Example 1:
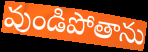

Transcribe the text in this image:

వుండిపోతాను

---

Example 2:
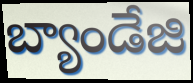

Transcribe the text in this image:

బ్యాండేజి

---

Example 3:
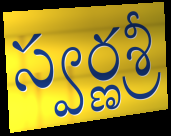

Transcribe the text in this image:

స్వర్ణశ్రీ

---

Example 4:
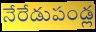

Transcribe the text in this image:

నేరేడుపండ్ల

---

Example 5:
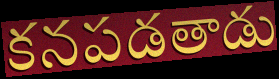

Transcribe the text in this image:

కనపడతాడు